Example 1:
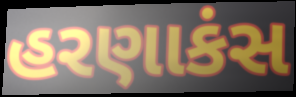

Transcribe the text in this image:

હરણાકંસ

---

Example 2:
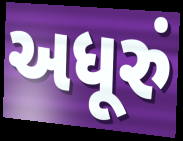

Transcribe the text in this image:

અધૂરું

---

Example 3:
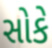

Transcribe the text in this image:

સોકે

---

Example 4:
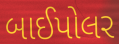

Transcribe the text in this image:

બાઈપોલર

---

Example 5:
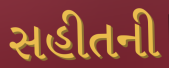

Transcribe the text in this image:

સહીતની